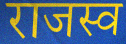
राजस्व